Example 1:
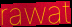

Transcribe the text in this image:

rawat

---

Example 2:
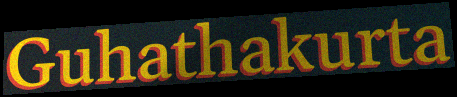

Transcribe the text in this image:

Guhathakurta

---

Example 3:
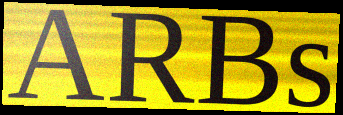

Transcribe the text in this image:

ARBs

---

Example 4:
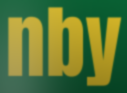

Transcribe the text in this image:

nby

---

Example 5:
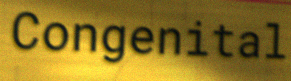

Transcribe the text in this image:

Congenital